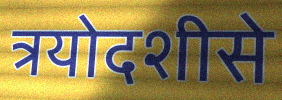
त्रयोदशीसे